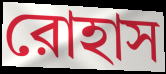
রোহাস